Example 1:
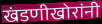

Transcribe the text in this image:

खंडणीखोरांनी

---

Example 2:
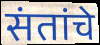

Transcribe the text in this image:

संतांचे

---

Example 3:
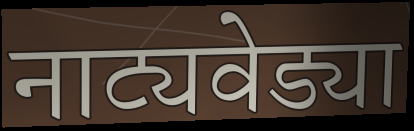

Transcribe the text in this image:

नाट्यवेड्या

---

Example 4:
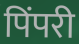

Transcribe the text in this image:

पिंपरी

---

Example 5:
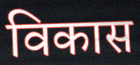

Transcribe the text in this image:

विकास